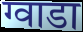
ग्वाडा